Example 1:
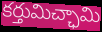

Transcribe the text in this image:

కర్తుమిచ్ఛామి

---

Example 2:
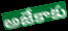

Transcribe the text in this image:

అజేకాకు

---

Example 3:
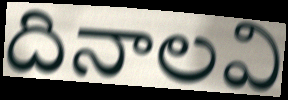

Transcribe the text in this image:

దినాలవి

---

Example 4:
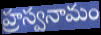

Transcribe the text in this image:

హ్రస్వనామం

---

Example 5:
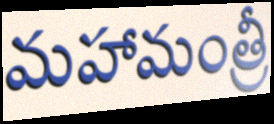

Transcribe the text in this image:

మహామంత్రీ